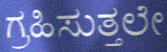
ಗ್ರಹಿಸುತ್ತಲೇ